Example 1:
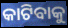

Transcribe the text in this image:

କାଟିବାକୁ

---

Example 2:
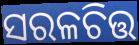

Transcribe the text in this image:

ସରଳଚିତ୍ତ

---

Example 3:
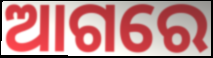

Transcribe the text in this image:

ଆଗରେ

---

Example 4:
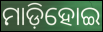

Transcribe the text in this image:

ମାଡ଼ିହୋଇ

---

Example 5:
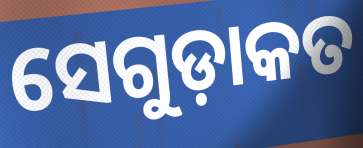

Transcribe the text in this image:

ସେଗୁଡ଼ାକତ